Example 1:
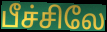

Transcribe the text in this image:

பீச்சிலே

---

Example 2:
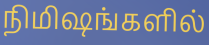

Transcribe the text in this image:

நிமிஷங்களில்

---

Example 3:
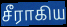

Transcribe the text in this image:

சீராகிய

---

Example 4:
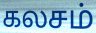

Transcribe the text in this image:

கலசம்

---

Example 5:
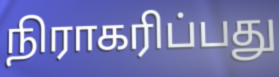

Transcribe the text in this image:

நிராகரிப்பது